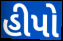
હીપો